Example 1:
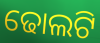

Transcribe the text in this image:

ଢୋଲଟି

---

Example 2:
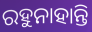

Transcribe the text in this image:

ରହୁନାହାନ୍ତି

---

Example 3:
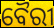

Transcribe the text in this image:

ବୈରୀ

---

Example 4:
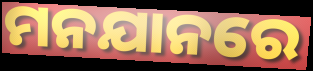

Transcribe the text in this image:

ମନଯାନରେ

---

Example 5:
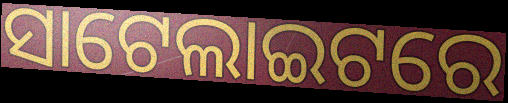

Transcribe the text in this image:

ସାଟେଲାଇଟରେ